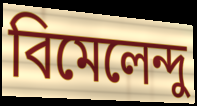
বিমেলেন্দু